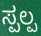
ಸ್ಪಲ್ಪ